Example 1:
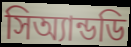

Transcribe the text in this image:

সিঅ্যান্ডডি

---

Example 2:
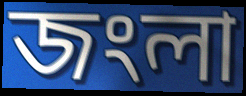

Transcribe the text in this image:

জংলা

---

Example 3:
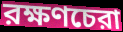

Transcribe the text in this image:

রক্ষণচেরা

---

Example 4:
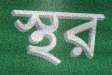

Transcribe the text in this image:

স্থর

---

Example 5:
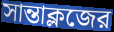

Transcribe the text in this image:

সান্তাক্লজের